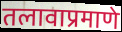
तलावाप्रमाणे